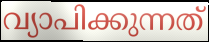
വ്യാപിക്കുന്നത്